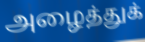
அழைத்துக்